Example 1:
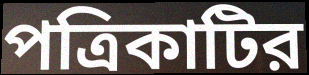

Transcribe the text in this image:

পত্রিকাটির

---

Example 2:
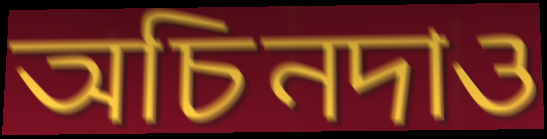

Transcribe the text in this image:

অচিনদাও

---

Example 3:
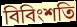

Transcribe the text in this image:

বিবিংশতি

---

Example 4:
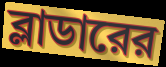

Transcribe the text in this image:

ব্লাডারের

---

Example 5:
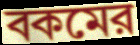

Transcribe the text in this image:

বকমের